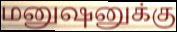
மனுஷனுக்கு